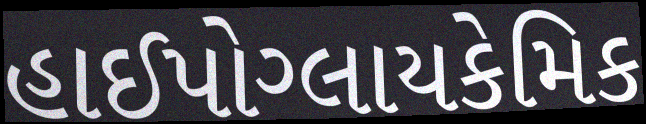
હાઈપોગ્લાયકેમિક